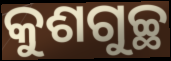
କୁଶଗୁଚ୍ଛ